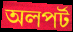
অলপর্ট